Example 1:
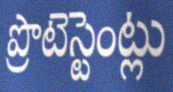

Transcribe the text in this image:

ప్రొటెస్టెంట్లు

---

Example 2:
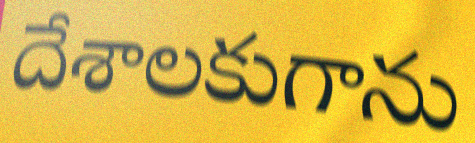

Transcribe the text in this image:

దేశాలకుగాను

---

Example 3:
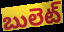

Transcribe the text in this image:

బులెట్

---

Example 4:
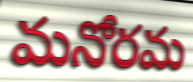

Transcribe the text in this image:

మనోరమ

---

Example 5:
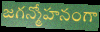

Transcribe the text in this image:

జగన్మోహనంగా